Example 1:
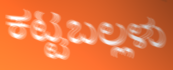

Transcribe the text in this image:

ಕಟ್ಟಬಲ್ಲಳು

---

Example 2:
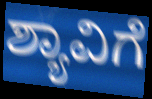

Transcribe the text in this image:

ಶ್ಯಾವಿಗೆ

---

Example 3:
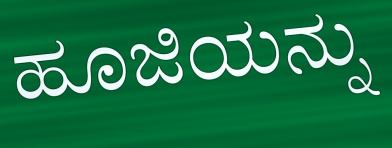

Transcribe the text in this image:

ಹೂಜಿಯನ್ನು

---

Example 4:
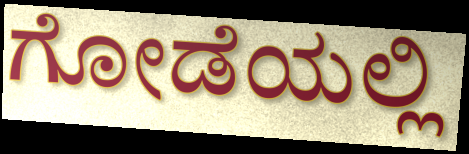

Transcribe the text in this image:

ಗೋಡೆಯಲ್ಲಿ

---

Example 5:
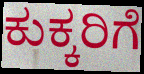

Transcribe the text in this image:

ಕುಕ್ಕರಿಗೆ